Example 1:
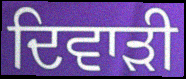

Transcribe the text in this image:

ਦਿਵਾੜੀ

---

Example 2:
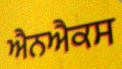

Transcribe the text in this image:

ਐਨਐਕਸ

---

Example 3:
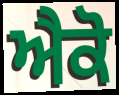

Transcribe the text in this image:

ਐਕੋ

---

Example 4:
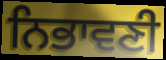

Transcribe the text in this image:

ਨਿਭਾਵਣੀ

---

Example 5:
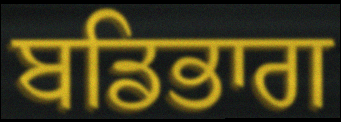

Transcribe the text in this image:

ਬਡਿਭਾਗ